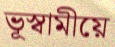
ভূস্বামীয়ে